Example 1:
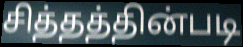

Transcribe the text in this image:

சித்தத்தின்படி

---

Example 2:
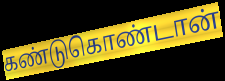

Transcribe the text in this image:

கண்டுகொண்டான்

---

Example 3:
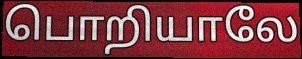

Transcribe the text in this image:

பொறியாலே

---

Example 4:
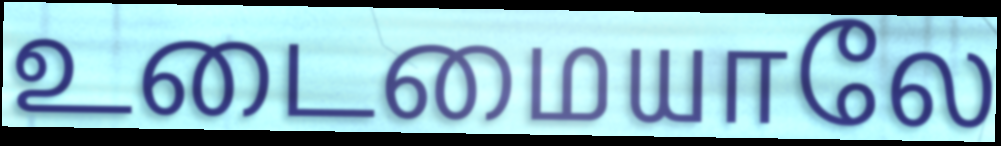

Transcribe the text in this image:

உடைமையாலே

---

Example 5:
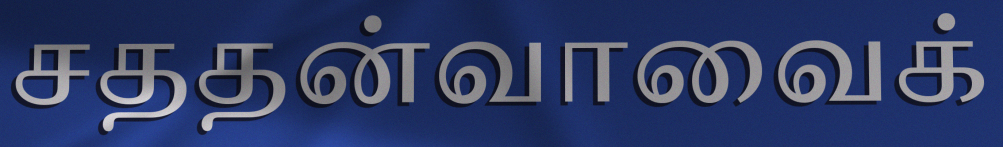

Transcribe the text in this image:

சததன்வாவைக்